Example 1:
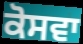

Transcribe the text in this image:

ਕੋਸਵਾ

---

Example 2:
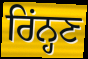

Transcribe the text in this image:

ਰਿਂਨ੍ਹਣ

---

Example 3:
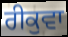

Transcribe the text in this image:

ਰੀਕੁਵਾ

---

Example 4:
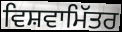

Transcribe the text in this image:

ਵਿਸ਼ਵਾਮਿੱਤਰ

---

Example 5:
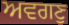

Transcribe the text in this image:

ਅਵਗਣੁ